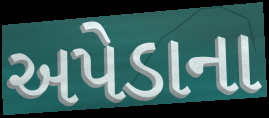
અપેડાના